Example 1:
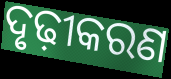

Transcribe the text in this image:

ଦୃଢ଼ୀକରଣ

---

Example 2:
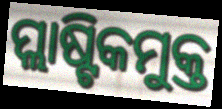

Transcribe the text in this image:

ପ୍ଲାଷ୍ଟିକମୁକ୍ତ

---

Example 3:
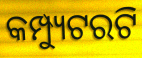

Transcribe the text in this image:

କମ୍ପ୍ୟୁଟରଟି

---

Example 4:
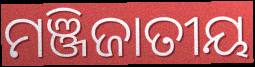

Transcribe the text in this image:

ମଞ୍ଜିଜାତୀୟ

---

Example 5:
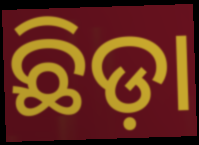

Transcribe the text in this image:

ଛିଡ଼ା